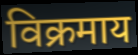
विक्रमाय